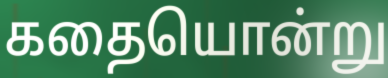
கதையொன்று